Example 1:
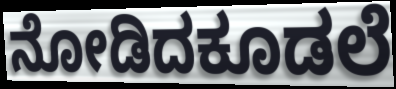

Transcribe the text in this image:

ನೋಡಿದಕೂಡಲೆ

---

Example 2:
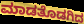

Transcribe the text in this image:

ಮಾಡತೊಡಗಿದ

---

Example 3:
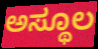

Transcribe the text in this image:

ಅಸ್ಥೂಲ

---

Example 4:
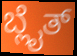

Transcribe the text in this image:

ಬ್ಲೈತ್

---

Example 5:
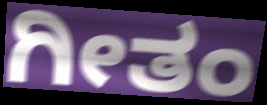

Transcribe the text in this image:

ಗೀತಂ